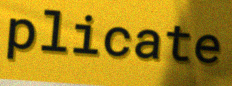
plicate